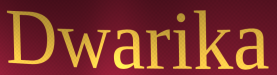
Dwarika